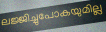
ലജ്ജിച്ചുപോകയുമില്ല